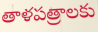
తాళపత్రాలకు